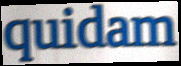
quidam